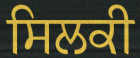
ਸਿਲਕੀ